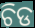
ଚିଡ